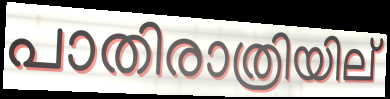
പാതിരാത്രിയില്